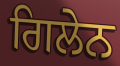
ਗਿਲੇਨ